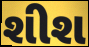
શીશ